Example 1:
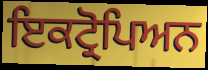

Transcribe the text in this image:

ਇਕਟ੍ਰੋਪਿਅਨ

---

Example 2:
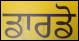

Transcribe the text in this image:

ਡਾਰਡੋ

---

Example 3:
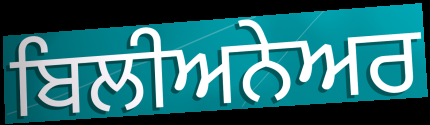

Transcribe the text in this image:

ਬਿਲੀਅਨੇਅਰ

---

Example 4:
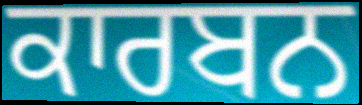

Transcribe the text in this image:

ਕਾਰਬਨ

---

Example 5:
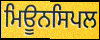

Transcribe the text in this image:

ਮਿਊਨਸਿਪਲ